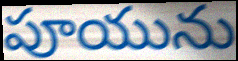
పూయును